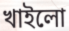
খাইলো